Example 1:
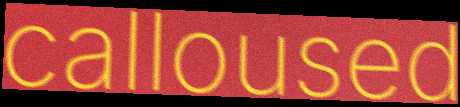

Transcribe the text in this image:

calloused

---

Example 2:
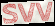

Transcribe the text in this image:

SVV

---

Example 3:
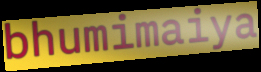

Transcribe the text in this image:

bhumimaiya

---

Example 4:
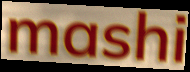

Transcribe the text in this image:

mashi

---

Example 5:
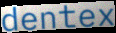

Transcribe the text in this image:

dentex